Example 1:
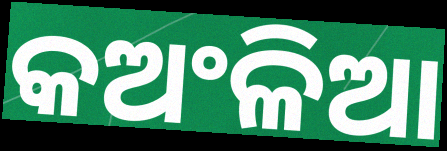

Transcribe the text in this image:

କଅଂଳିଆ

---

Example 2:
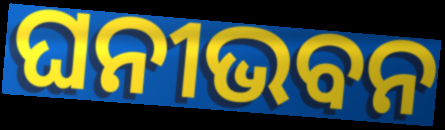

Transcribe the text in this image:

ଘନୀଭବନ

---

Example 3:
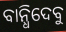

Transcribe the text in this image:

ବାନ୍ଧିଦେବୁ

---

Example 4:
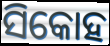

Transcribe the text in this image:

ସିକୋହ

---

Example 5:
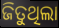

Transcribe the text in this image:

ଜିତୁଥିଲା